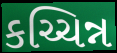
કચ્ચિન્ન